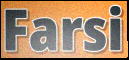
Farsi